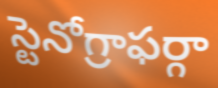
స్టెనోగ్రాఫర్గా